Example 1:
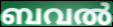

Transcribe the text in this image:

ബവൽ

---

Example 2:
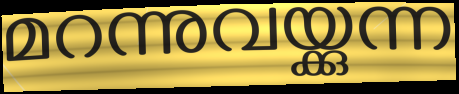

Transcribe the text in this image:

മറന്നുവയ്ക്കുന്ന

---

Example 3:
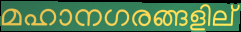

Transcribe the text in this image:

മഹാനഗരങ്ങളില്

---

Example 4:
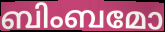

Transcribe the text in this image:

ബിംബമോ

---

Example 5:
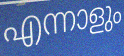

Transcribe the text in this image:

എന്നാളും